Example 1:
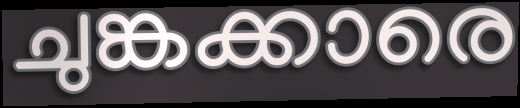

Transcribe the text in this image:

ചുങ്കക്കാരെ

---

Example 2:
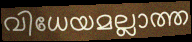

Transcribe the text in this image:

വിധേയമല്ലാത്ത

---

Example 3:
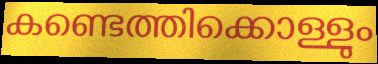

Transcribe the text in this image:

കണ്ടെത്തിക്കൊള്ളും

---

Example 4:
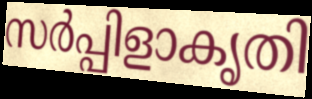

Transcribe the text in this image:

സർപ്പിളാകൃതി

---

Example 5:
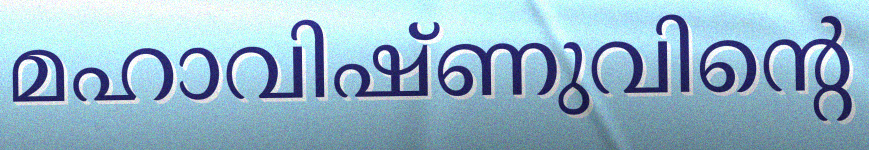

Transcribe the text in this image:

മഹാവിഷ്ണുവിന്റെ